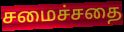
சமைச்சதை